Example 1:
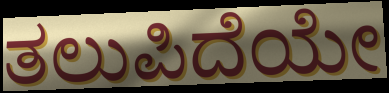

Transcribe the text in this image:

ತಲುಪಿದೆಯೇ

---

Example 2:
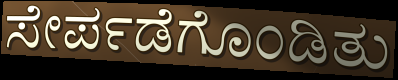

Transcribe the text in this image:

ಸೇರ್ಪಡೆಗೊಂಡಿತು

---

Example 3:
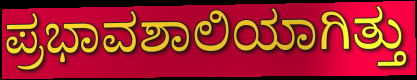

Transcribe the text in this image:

ಪ್ರಭಾವಶಾಲಿಯಾಗಿತ್ತು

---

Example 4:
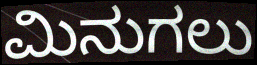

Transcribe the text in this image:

ಮಿನುಗಲು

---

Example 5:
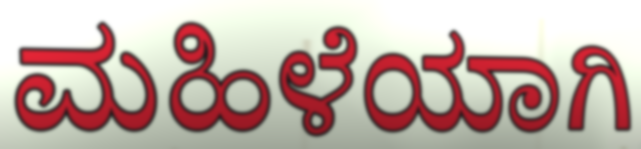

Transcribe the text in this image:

ಮಹಿಳೆಯಾಗಿ